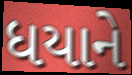
ધયાને